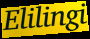
Elilingi